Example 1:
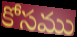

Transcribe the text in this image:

కోసము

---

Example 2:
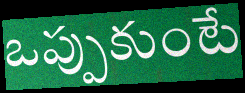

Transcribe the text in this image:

ఒప్పుకుంటే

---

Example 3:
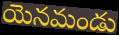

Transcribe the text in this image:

యెనమండు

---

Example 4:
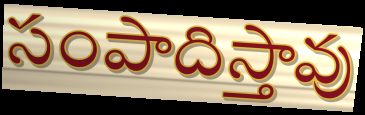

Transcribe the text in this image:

సంపాదిస్తావు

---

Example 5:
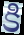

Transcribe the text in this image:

కి